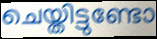
ചെയ്തിട്ടുണ്ടോ